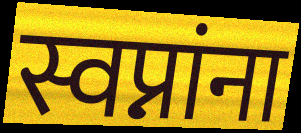
स्वप्नांना